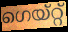
ഗെയ്റ്റ്